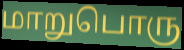
மாறுபொரு